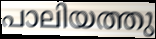
പാലിയത്തു